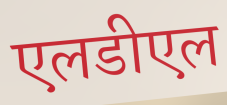
एलडीएल